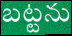
బట్టను